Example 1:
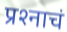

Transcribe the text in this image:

प्रश्नाचं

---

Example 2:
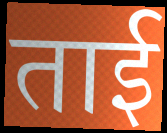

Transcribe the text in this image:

ताई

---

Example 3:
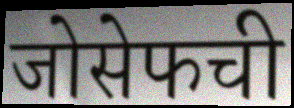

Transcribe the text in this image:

जोसेफची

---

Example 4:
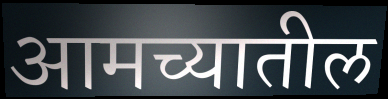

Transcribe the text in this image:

आमच्यातील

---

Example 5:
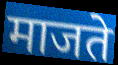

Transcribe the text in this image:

माजते